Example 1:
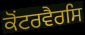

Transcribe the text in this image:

ਕੋਂਟਰਵੈਰਸਿ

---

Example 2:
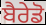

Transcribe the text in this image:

ਬੈਰੇਡੋ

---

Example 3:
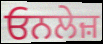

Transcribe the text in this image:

ਓਨਲੇਜ਼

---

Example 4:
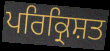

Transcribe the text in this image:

ਪਰਿਕ੍ਰਿਸ਼ਤ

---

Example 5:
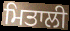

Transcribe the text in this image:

ਮਿਤਾਲੀ